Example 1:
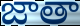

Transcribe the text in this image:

జాతా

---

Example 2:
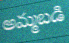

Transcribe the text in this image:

అమ్మబడి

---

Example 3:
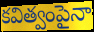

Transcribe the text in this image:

కవిత్వంపైనా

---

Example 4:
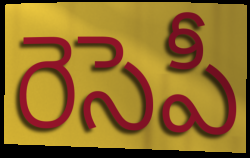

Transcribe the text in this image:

రెసెపీ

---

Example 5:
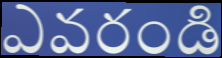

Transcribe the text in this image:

ఎవరండి